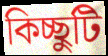
কিচ্ছুটি